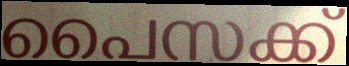
പൈസക്ക്